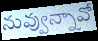
నువ్వున్నావో